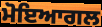
ਮੋਇਆਗਲ